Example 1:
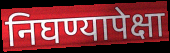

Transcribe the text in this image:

निघण्यापेक्षा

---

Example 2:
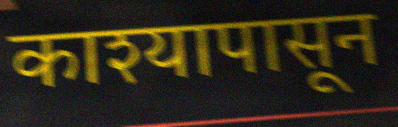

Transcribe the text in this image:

काश्यापासून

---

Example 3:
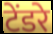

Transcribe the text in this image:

टेंडरे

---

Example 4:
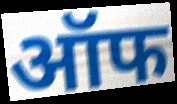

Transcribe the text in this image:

ऑफ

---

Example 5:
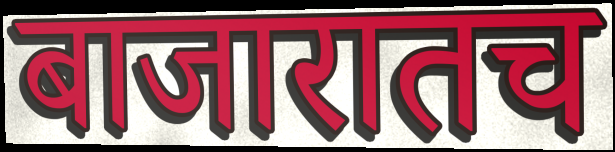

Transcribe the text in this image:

बाजारातच